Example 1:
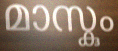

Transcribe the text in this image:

മാസ്കും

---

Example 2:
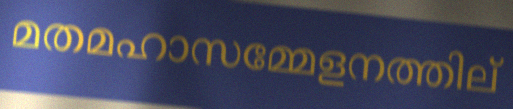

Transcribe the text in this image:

മതമഹാസമ്മേളനത്തില്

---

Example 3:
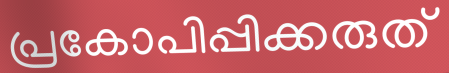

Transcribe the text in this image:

പ്രകോപിപ്പിക്കരുത്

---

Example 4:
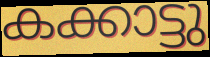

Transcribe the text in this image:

കക്കാട്ടു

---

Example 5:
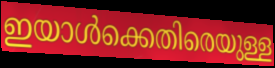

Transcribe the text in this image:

ഇയാൾക്കെതിരെയുള്ള